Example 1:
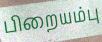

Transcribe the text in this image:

பிறையம்பு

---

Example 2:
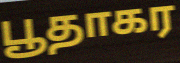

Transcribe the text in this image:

பூதாகர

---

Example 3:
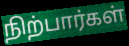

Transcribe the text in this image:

நிற்பார்கள்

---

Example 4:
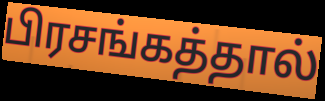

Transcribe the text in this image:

பிரசங்கத்தால்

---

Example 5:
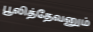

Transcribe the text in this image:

பூலித்தேவனும்